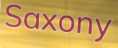
Saxony